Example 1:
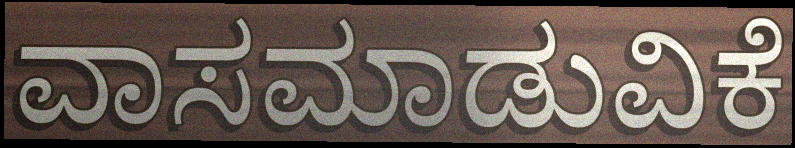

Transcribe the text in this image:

ವಾಸಮಾಡುವಿಕೆ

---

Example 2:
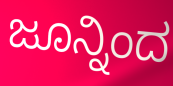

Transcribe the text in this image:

ಜೂನ್ನಿಂದ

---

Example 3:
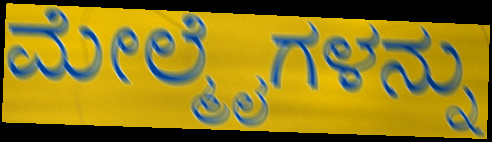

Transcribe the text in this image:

ಮೇಲ್ಮೈಗಳನ್ನು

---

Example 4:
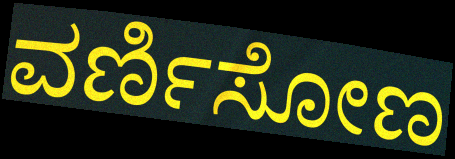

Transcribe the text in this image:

ವರ್ಣಿಸೋಣ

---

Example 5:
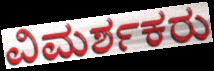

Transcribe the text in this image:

ವಿಮರ್ಶಕರು